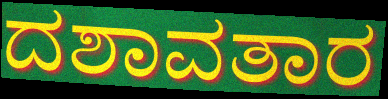
ದಶಾವತಾರ